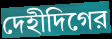
দেহীদিগের